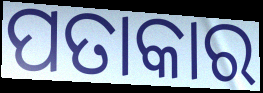
ପତାକାର